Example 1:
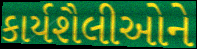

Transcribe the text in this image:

કાર્યશૈલીઓને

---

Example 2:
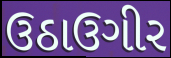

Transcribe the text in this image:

ઉઠાઉગીર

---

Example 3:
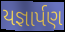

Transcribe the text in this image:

યજ્ઞાર્પણ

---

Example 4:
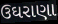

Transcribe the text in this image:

ઉઘરાણા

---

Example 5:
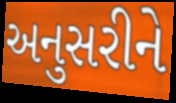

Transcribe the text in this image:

અનુસરીને